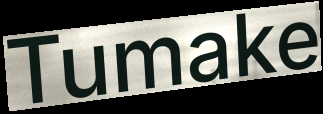
Tumake